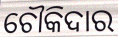
ଚୌକିଦାର